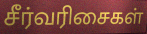
சீர்வரிசைகள்